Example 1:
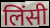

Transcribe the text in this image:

लिंसी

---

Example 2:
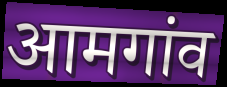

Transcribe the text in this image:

आमगांव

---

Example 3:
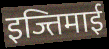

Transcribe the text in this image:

इज्तिमाई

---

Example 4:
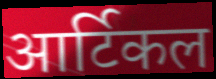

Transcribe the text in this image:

आर्टिकल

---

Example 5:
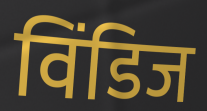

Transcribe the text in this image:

विंडिज